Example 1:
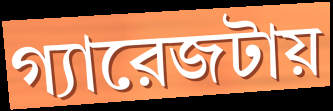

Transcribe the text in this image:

গ্যারেজটায়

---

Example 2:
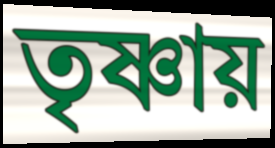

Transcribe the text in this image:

তৃষ্ণায়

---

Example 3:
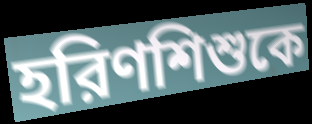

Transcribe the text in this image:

হরিণশিশুকে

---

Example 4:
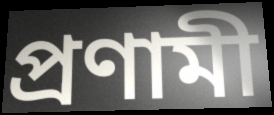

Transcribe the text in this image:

প্রণামী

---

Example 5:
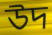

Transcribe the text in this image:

উদ